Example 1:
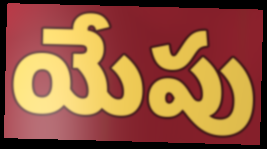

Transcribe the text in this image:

యేపు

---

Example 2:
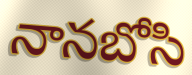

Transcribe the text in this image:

నానబోసి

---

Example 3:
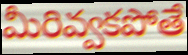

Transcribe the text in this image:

మీరివ్వకపోతే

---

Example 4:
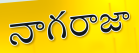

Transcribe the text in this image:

నాగరాజా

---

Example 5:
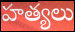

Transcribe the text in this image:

హత్యలు